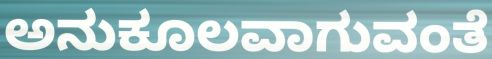
ಅನುಕೂಲವಾಗುವಂತೆ